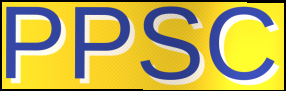
PPSC